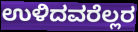
ಉಳಿದವರೆಲ್ಲರ